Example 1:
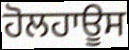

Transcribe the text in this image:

ਹੋਲਹਾਊਸ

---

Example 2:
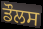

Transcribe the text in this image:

ਡੌਲਸ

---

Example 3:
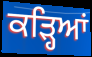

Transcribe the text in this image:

ਕੜ੍ਹਿਆਂ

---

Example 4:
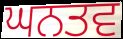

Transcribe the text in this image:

ਘਨਤਵ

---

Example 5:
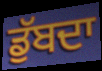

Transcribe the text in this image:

ਡੁੱਬਦਾ